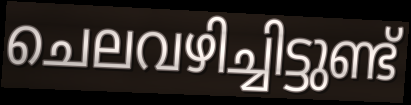
ചെലവഴിച്ചിട്ടുണ്ട്